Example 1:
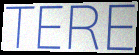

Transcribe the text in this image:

TERE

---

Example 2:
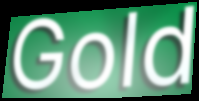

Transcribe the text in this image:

Gold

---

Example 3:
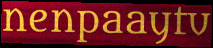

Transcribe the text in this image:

nenpaaytu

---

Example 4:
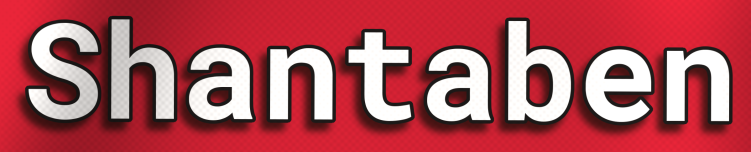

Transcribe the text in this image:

Shantaben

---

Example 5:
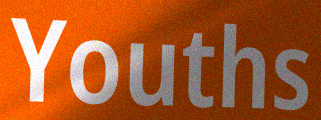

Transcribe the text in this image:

Youths